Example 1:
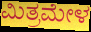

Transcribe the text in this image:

ಮಿತ್ರಮೇಳ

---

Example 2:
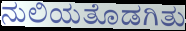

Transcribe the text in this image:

ನುಲಿಯತೊಡಗಿತು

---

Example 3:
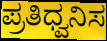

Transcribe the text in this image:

ಪ್ರತಿಧ್ವನಿಸ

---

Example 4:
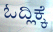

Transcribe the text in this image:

ಓದ್ಲಿಕ್ಕೆ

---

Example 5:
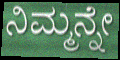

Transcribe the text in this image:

ನಿಮ್ಮನ್ನೇ